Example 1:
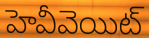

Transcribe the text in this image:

హెవీవెయిట్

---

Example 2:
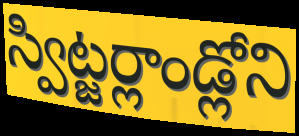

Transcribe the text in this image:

స్విట్జర్లాండ్లోని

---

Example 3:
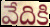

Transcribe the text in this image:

వేదికి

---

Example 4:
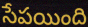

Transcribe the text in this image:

సేపయింది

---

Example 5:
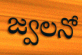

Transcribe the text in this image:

జ్వలనో